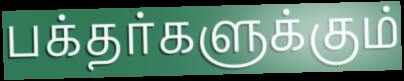
பக்தர்களுக்கும்